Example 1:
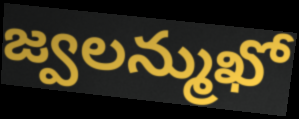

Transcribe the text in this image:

జ్వలన్ముఖో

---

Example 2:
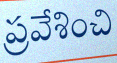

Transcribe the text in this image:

ప్రవేశించి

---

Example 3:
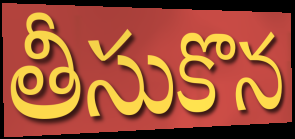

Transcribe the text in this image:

తీసుకొన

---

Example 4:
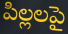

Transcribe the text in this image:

పిల్లలపై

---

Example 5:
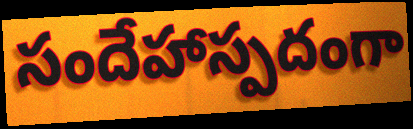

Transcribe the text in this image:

సందేహాస్పదంగా